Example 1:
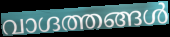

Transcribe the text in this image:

വാഗ്ദത്തങ്ങൾ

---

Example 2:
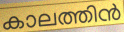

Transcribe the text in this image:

കാലത്തിൻ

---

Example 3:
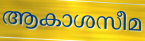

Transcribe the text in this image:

ആകാശസീമ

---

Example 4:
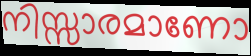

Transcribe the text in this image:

നിസ്സാരമാണോ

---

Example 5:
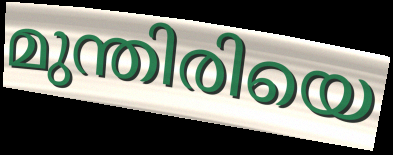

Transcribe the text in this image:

മുന്തിരിയെ